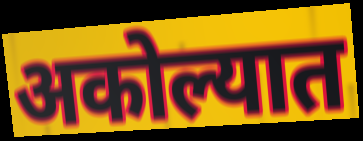
अकोल्यात